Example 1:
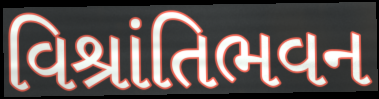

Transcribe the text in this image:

વિશ્રાંતિભવન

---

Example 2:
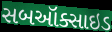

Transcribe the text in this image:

સબઑક્સાઇડ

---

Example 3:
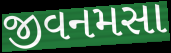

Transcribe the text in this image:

જીવનમસા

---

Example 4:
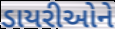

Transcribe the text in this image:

ડાયરીઓને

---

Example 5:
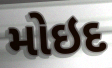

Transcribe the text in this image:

મોઇદ